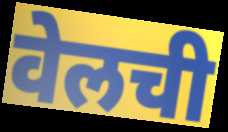
वेलची